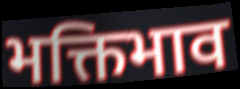
भक्तिभाव